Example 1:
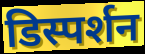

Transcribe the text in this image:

डिस्पर्शन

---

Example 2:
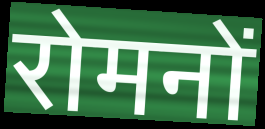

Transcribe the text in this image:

रोमनों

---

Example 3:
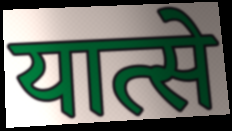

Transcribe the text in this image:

यात्से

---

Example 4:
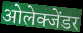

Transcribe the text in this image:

ओलेक्जेंडर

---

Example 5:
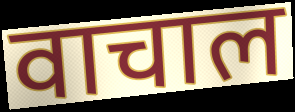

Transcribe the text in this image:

वाचाल